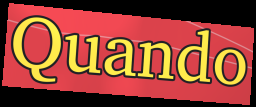
Quando